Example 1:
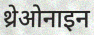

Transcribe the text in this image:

थ्रेओनाइन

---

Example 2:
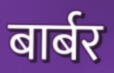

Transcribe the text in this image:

बार्बर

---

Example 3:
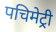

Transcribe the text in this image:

पचिमेट्री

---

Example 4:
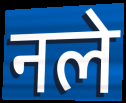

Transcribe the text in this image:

नले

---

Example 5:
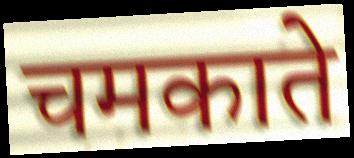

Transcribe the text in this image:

चमकाते